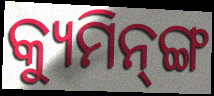
କ୍ୟୁମିନ୍‌ଙ୍ଗ